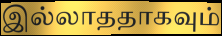
இல்லாததாகவும்